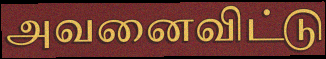
அவனைவிட்டு